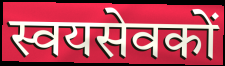
स्वयसेवकों